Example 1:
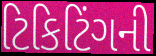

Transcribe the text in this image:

ટિકિટિંગની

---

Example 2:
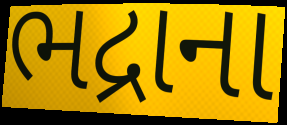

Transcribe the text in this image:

ભદ્રાના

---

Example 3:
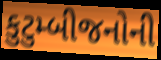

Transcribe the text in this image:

કુટુમ્બીજનોની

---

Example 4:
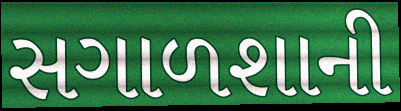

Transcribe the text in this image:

સગાળશાની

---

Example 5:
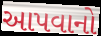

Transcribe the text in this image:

આપવાનો